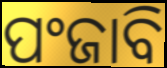
ପଂଜାବି